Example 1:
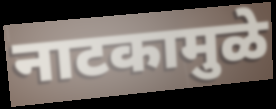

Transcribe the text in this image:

नाटकामुळे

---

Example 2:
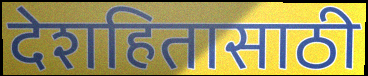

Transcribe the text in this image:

देशहितासाठी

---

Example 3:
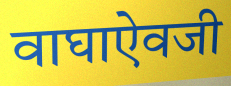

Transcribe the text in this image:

वाघाऐवजी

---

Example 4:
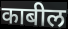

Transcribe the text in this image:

काबील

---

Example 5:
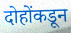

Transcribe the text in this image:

दोहोंकडून